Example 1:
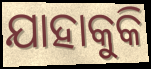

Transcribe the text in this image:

ଯାହାକୁକି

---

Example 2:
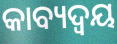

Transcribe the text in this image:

କାବ୍ୟଦ୍ୱୟ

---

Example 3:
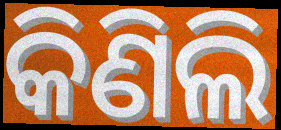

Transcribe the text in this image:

କିଣିଲି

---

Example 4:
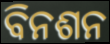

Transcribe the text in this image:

ବିନଶନ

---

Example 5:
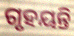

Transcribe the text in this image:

ଗୃହୟନ୍ତି